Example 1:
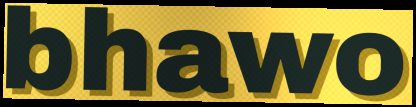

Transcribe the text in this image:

bhawo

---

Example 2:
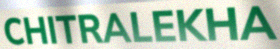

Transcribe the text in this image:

CHITRALEKHA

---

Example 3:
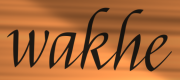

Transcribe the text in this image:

wakhe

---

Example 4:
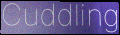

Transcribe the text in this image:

Cuddling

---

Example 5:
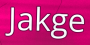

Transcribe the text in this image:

Jakge